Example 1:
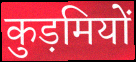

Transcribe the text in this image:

कुड़मियों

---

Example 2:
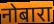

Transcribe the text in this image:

नोबारा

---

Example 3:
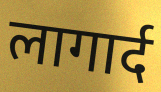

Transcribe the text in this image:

लागार्द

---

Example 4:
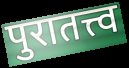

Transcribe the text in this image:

पुरातत्त्व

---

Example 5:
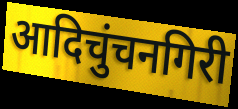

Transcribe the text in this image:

आदिचुंचनगिरी